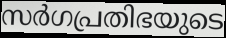
സർഗപ്രതിഭയുടെ